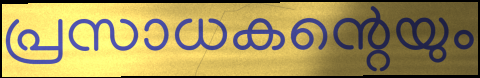
പ്രസാധകന്റെയും